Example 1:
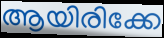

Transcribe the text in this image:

ആയിരിക്കേ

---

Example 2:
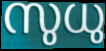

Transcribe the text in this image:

സുധു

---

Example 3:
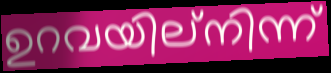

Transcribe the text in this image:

ഉറവയില്നിന്ന്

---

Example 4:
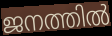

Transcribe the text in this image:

ജനത്തിൽ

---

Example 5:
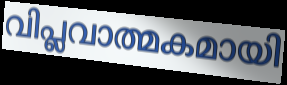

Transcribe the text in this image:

വിപ്ലവാത്മകമായി